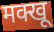
मक्खू